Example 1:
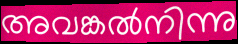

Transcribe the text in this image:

അവങ്കൽനിന്നു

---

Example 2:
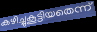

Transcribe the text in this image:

കഴിച്ചുകൂട്ടിയതെന്ന്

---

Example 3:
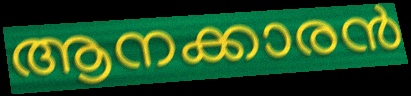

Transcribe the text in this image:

ആനക്കാരൻ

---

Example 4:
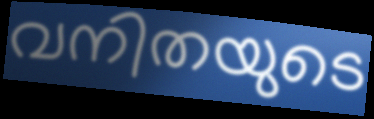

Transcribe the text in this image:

വനിതയുടെ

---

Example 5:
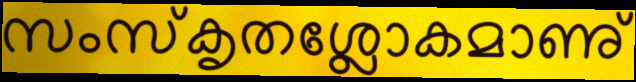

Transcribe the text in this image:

സംസ്കൃതശ്ലോകമാണു്